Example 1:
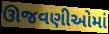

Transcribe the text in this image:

ઊજવણીઓમાં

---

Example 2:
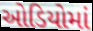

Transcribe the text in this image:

ઓડિયોમાં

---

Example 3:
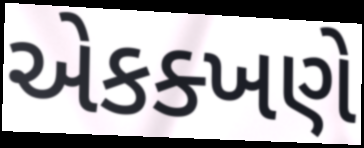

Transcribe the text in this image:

એકક્ખણે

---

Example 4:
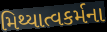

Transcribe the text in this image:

મિથ્યાત્વકર્મના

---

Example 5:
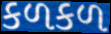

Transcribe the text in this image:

કળકળ